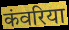
कंवरिया